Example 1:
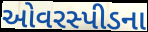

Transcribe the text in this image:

ઓવરસ્પીડના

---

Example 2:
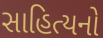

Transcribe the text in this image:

સાહિત્યનો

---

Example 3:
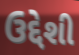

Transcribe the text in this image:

ઉદ્દેશી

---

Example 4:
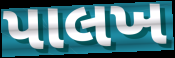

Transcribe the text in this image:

પાલખ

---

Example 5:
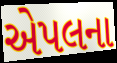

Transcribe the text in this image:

એપલના